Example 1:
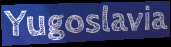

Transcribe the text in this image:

Yugoslavia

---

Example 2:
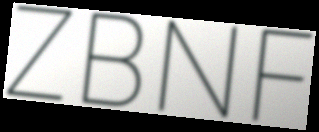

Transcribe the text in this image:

ZBNF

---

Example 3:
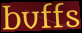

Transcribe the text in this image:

buffs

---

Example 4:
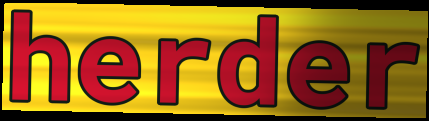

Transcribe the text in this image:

herder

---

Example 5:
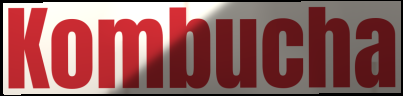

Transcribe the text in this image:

Kombucha